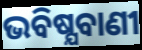
ଭବିଷ୍ଯବାଣୀ